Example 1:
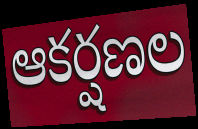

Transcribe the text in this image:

ఆకర్షణల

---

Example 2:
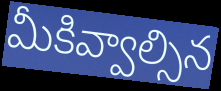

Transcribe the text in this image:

మీకివ్వాల్సిన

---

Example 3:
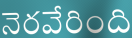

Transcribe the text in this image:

నెరవేరింది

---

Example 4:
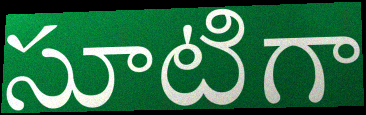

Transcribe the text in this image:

సూటిగా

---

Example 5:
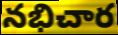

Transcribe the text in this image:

నభిచార